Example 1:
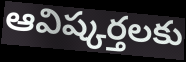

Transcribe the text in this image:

ఆవిష్కర్తలకు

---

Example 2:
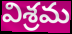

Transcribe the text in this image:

విశ్రమ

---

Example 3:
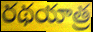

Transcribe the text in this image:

రథయాత్ర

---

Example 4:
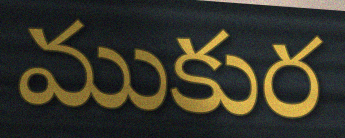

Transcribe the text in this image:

ముకుర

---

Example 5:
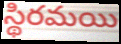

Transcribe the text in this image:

స్థిరమయి